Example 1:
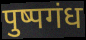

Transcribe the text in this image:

पुष्पगंध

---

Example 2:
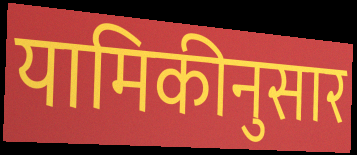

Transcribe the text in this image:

यामिकीनुसार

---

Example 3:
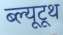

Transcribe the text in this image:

ब्ल्यूटूथ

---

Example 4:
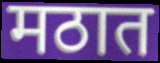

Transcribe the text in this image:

मठात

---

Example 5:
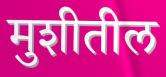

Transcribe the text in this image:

मुशीतील